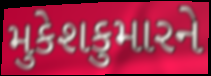
મુકેશકુમારને